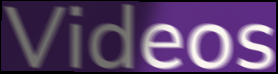
Videos